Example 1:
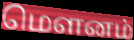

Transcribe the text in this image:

மெளனம்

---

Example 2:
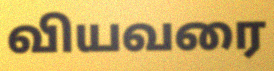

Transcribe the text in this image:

வியவரை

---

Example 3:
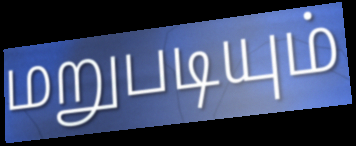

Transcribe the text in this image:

மறுபடியும்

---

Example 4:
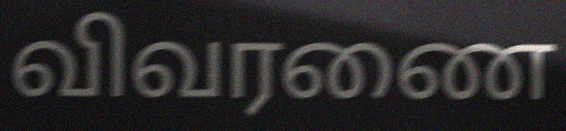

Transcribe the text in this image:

விவரணை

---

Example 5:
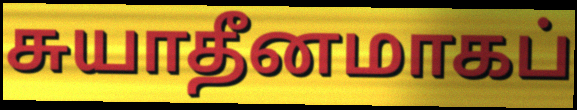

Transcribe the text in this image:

சுயாதீனமாகப்